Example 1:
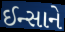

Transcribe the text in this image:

ઈન્સાને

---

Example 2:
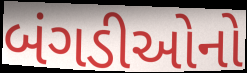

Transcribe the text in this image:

બંગડીઓનો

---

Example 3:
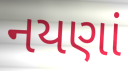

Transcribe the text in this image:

નયણાં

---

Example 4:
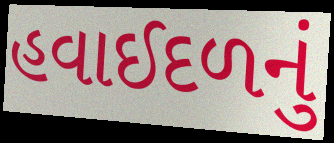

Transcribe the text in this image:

હવાઈદળનું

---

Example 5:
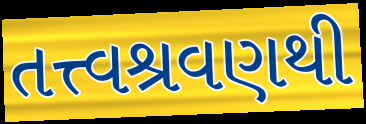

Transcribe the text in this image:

તત્ત્વશ્રવણથી